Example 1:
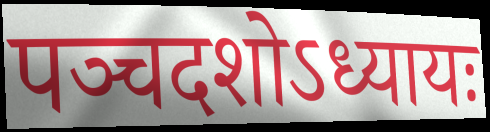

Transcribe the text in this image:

पञ्चदशोऽध्यायः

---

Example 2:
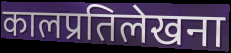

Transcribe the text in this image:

कालप्रतिलेखना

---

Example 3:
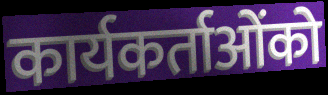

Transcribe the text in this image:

कार्यकर्ताओंको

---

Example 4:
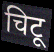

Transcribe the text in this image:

चिटू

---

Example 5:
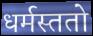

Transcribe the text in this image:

धर्मस्ततो